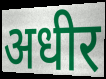
अधीर